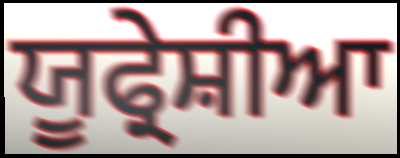
ਯੂਫ੍ਰੇਸ਼ੀਆ